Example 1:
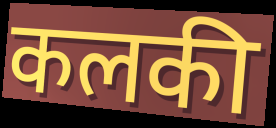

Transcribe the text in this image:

कलकी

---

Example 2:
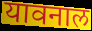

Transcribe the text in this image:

यावनाल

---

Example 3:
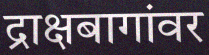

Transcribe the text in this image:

द्राक्षबागांवर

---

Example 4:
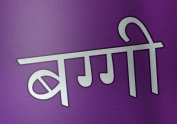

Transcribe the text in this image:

बग्गी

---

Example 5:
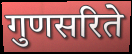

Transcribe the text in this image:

गुणसरिते